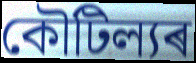
কৌটিল্যৰ